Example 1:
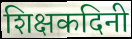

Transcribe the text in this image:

शिक्षकदिनी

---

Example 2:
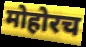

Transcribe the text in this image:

मोहोरच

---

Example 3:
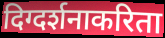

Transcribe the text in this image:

दिग्दर्शनाकरिता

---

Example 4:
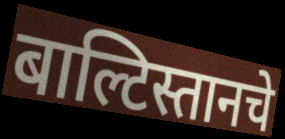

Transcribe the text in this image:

बाल्टिस्तानचे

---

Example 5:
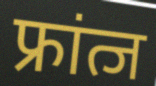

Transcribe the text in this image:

फ्रांत्ज